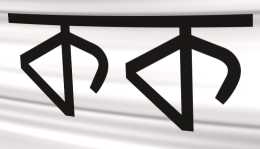
কক